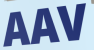
AAV